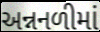
અન્નનળીમાં